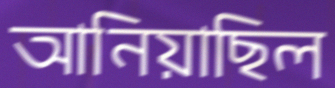
আনিয়াছিল